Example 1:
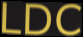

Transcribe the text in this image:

LDC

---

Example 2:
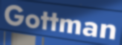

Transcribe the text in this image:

Gottman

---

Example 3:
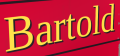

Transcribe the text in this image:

Bartold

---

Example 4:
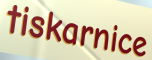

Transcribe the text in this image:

tiskarnice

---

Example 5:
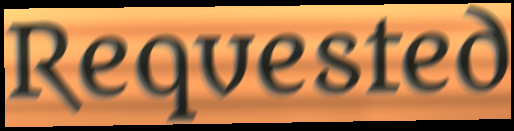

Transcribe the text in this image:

Requested